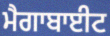
ਮੈਗਾਬਾਈਟ